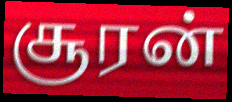
சூரன்